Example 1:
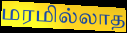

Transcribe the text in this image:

மரமில்லாத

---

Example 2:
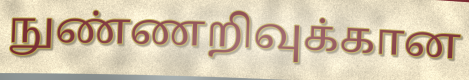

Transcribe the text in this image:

நுண்ணறிவுக்கான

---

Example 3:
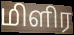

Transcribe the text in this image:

மிளிர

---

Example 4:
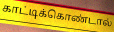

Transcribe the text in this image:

காட்டிக்கொண்டால்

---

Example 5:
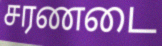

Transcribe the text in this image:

சரணடை